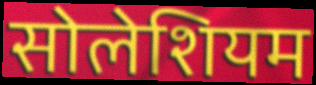
सोलेशियम